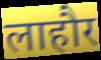
लाहौर